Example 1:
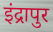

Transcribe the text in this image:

इंद्रापुर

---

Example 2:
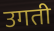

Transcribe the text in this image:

उगती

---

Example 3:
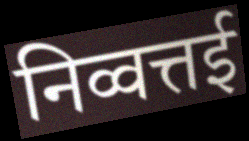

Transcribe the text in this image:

निव्वत्तई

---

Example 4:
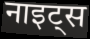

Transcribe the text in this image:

नाइट्स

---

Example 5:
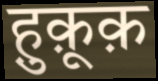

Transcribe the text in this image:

ह़ुक़ूक़